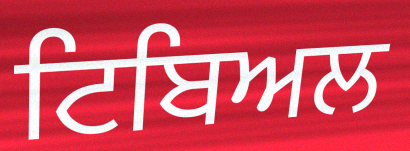
ਟਿਬਿਅਲ